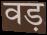
वड़